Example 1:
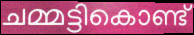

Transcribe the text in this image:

ചമ്മട്ടികൊണ്ട്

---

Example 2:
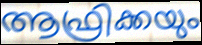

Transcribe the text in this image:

ആഫ്രിക്കയും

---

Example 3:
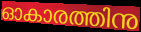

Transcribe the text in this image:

ഓകാരത്തിനു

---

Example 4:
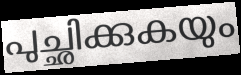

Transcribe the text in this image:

പുച്ഛിക്കുകയും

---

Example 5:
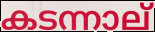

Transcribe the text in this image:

കടന്നാല്